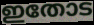
ഇതോട